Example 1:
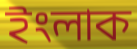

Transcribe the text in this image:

ইংলাক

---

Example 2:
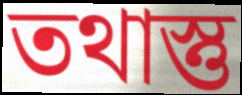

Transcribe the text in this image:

তথাস্তু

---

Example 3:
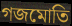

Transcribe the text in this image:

গজমোতি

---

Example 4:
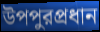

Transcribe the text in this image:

উপপুরপ্রধান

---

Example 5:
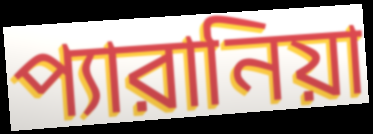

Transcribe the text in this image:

প্যারানিয়া